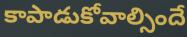
కాపాడుకోవాల్సిందే